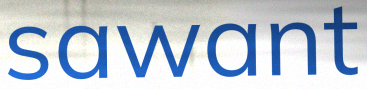
sawant